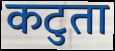
कटुता